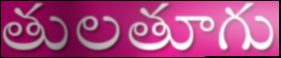
తులతూగు